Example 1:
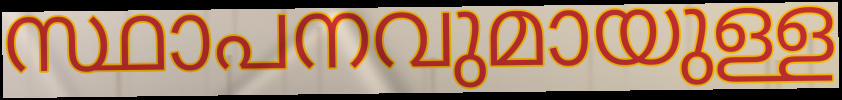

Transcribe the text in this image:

സ്ഥാപനവുമായുള്ള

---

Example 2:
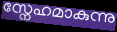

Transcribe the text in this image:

സ്നേഹമാകുന്നു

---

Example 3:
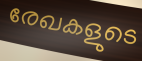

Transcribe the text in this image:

രേഖകളുടെ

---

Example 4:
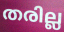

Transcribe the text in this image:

തരില്ല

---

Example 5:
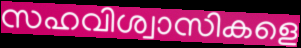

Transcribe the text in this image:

സഹവിശ്വാസികളെ